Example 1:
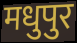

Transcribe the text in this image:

मधुपुर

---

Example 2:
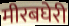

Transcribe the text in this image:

मीरबघेरी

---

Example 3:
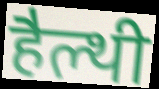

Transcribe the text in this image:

हैल्थी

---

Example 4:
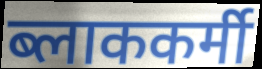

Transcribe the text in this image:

ब्लाककर्मी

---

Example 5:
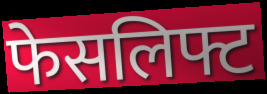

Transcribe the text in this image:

फेसलिफ्ट